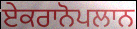
ਏਕਰਾਨੋਪਲਾਨ